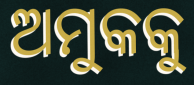
ଅମୁକକୁ